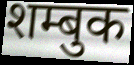
शम्बुक